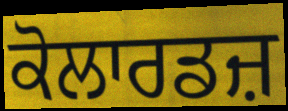
ਕੋਲਾਰਡਜ਼